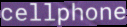
cellphone